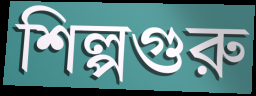
শিল্পগুরু